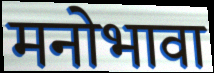
मनोभावा